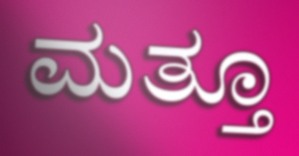
ಮತ್ತೂ